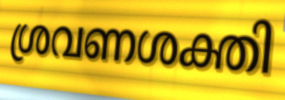
ശ്രവണശക്തി